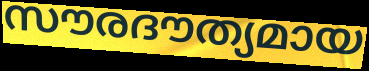
സൗരദൗത്യമായ